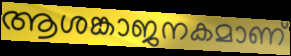
ആശങ്കാജനകമാണ്